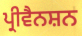
ਪ੍ਰੀਵੈਨਸ਼ਨ